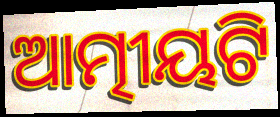
ଆତ୍ମୀୟଟି